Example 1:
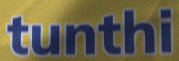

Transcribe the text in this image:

tunthi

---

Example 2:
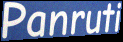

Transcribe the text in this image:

Panruti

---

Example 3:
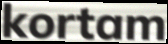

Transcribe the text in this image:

kortam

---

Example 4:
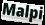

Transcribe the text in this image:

Malpi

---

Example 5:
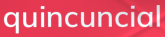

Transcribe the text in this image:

quincuncial